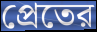
প্রেতের